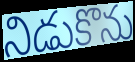
నిడుకొను